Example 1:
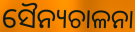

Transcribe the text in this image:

ସୈନ୍ୟଚାଳନା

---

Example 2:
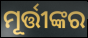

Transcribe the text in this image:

ମୂର୍ତ୍ତୀଙ୍କର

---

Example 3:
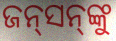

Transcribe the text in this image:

ଜନ୍‍ସନ୍‍ଙ୍କୁ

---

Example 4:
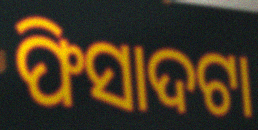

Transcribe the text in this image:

ଫିସାଦଟା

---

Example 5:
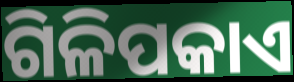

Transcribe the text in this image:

ଗିଳିପକାଏ